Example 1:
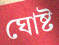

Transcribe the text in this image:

ঘোষ্ট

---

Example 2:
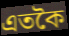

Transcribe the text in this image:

এতকৈ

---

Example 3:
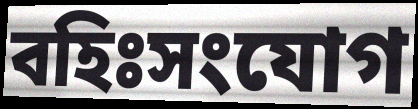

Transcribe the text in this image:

বহিঃসংযোগ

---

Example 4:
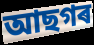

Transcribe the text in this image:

আছগৰ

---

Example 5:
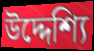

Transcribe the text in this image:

উদ্দেশ্যি